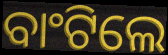
ବାଂଟିଲେ